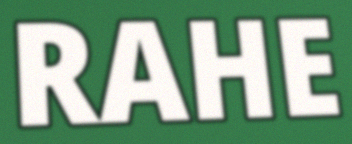
RAHE